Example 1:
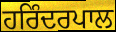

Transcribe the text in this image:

ਹਰਿੰਦਰਪਾਲ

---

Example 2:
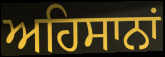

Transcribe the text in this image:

ਅਹਿਸਾਨਾਂ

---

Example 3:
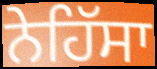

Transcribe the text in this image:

ਨੇਹਿੱਸਾ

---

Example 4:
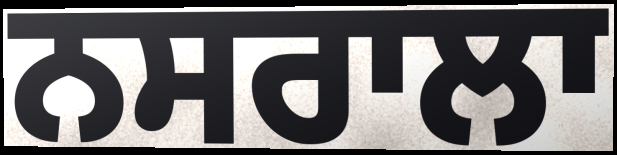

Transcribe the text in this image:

ਨਸਰਾਲਾ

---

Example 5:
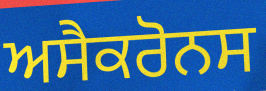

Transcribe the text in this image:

ਅਸੈਕਰੋਨਸ